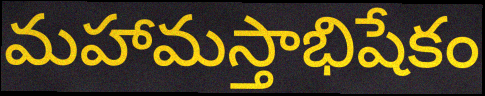
మహామస్తాభిషేకం